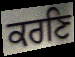
ਕਰਣਿ